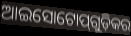
ଆଇସୋଟୋପ୍‌ଗୁଡ଼ିକର